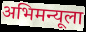
अभिमन्यूला